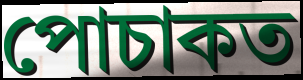
পোচাকত